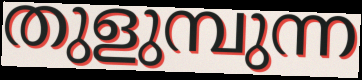
തുളുമ്പുന്ന